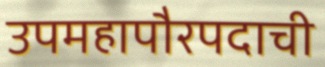
उपमहापौरपदाची